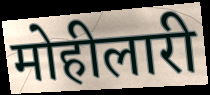
मोहीलारी